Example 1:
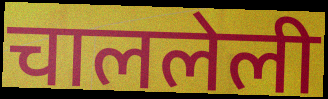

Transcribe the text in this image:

चाललेली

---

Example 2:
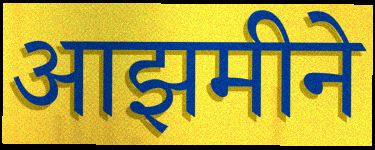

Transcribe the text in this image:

आझमीने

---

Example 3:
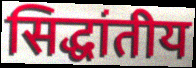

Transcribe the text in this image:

सिद्धांतीय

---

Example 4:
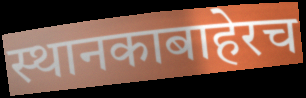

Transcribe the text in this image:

स्थानकाबाहेरच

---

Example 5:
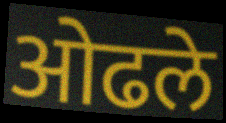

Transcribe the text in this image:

ओढले